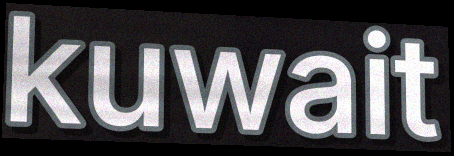
kuwait